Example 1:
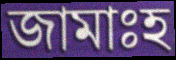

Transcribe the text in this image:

জামাঃহ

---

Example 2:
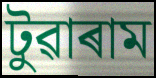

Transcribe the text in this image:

টুৱাৰাম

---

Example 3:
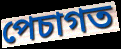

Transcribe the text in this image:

পেচাগত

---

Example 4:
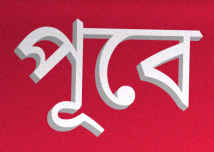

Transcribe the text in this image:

পূবে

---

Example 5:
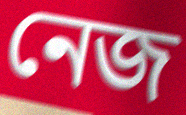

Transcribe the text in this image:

নেজ